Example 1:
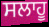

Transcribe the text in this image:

ਸਲਾਹੂ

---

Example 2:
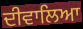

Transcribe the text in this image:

ਦੀਵਾਲਿਆ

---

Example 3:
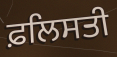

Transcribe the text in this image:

ਫ਼ਲਿਸਤੀ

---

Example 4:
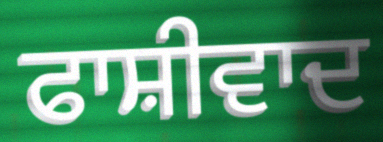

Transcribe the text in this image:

ਫਾਸ਼ੀਵਾਦ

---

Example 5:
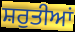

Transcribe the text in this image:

ਸ਼ਰੁਤੀਆਂ